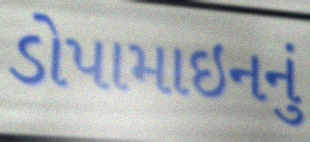
ડોપામાઇનનું